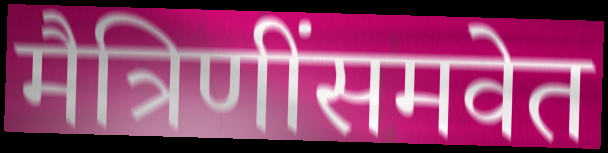
मैत्रिणींसमवेत